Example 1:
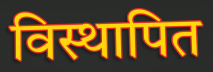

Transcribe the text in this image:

विस्थापित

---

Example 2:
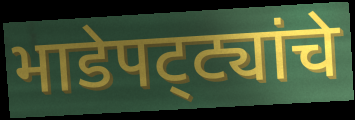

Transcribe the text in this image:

भाडेपट्ट्यांचे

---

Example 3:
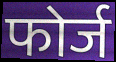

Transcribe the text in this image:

फोर्ज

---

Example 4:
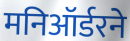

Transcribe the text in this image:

मनिऑर्डरने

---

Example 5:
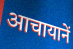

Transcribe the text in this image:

आचायानें